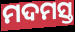
ମଦମସ୍ତ